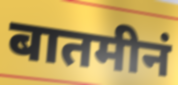
बातमीनं